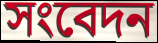
সংবেদন